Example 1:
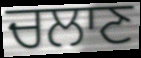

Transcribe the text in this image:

ਚਲਾਣ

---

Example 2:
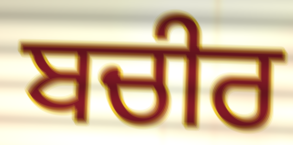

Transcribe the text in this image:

ਬਚੀਰ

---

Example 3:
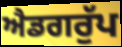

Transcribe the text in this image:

ਐਡਗਰੁੱਪ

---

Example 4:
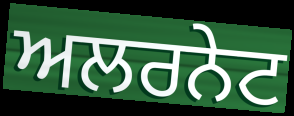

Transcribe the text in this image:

ਅਲਰਨੇਟ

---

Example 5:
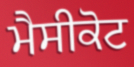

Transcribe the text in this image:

ਮੈਸੀਕੋਟ